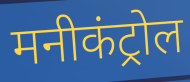
मनीकंट्रोल